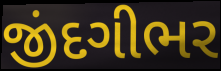
જીંદગીભર